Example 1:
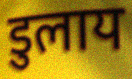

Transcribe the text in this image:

डुलाय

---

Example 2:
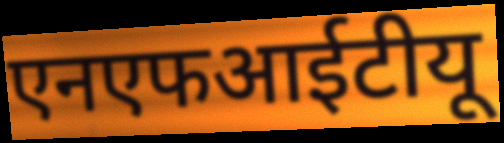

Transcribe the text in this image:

एनएफआईटीयू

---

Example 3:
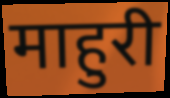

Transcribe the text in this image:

माहुरी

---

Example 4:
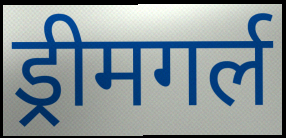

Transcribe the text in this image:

ड्रीमगर्ल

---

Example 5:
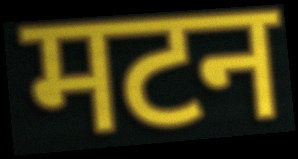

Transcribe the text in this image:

मटन